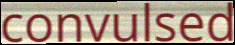
convulsed